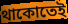
থাকোতেই